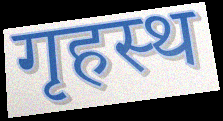
गृहस्थ